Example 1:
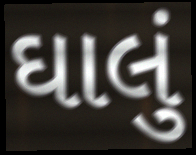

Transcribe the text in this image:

ઘાલું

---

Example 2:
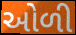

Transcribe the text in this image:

ઓળી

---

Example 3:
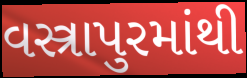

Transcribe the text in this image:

વસ્ત્રાપુરમાંથી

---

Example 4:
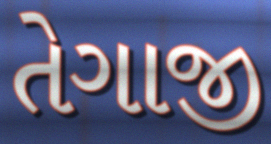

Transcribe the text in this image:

તેગાજી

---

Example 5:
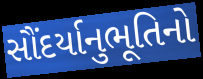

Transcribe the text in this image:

સૌંદર્યાનુભૂતિનો